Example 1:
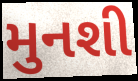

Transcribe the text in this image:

મુનશી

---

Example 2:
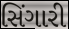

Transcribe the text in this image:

સિંગારી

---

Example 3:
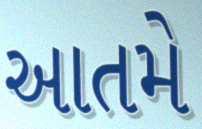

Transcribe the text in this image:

આતમે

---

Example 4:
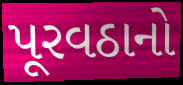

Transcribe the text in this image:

પૂરવઠાનો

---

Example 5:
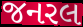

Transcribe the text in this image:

જનરલ